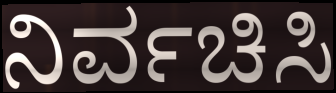
ನಿರ್ವಚಿಸಿ